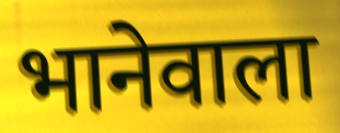
भानेवाला